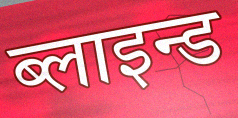
ब्लाइन्ड